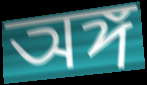
অঙ্গ